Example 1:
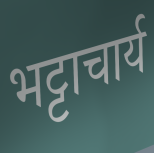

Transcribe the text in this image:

भट्टाचार्य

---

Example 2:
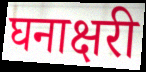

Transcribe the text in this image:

घनाक्षरी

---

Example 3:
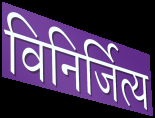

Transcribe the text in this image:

विनिर्जित्य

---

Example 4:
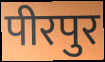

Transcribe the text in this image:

पीरपुर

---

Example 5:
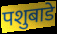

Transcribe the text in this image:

पशुबाडे